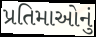
પ્રતિમાઓનું